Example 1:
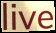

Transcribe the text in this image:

live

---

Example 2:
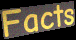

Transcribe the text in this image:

Facts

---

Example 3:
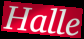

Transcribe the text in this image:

Halle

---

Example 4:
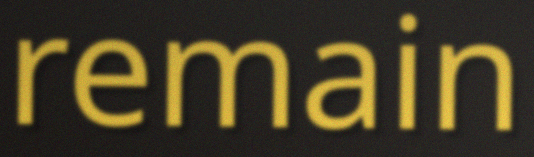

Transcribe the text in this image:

remain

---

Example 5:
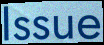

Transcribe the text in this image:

Issue